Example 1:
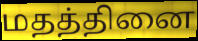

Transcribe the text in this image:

மதத்தினை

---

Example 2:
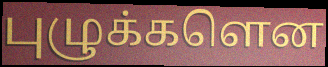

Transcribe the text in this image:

புழுக்களென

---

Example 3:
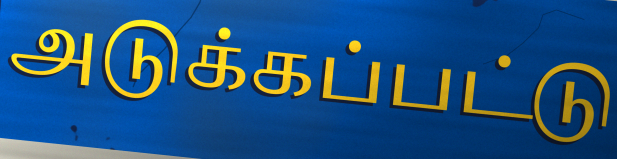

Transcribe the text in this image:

அடுக்கப்பட்டு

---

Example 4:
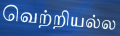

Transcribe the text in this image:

வெற்றியல்ல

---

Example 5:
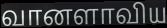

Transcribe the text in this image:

வானளாவிய